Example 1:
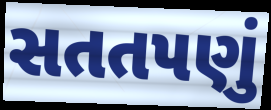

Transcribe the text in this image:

સતતપણું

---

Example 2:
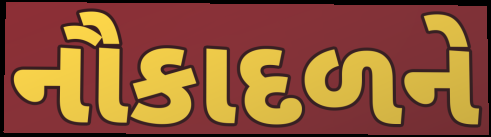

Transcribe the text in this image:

નૌકાદળને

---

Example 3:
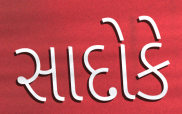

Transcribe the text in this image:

સાદોકે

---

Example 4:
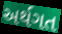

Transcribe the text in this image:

અર્થગત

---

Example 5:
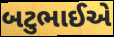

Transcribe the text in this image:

બટુભાઈએ